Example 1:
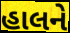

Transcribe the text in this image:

હાલને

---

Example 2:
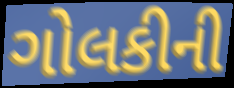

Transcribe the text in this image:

ગોલકીની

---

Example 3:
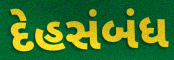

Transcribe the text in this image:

દેહસંબંધ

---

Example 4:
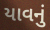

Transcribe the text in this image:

યાવનું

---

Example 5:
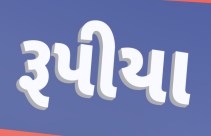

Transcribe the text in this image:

રૂપીયા